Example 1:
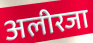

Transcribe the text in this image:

अलीरजा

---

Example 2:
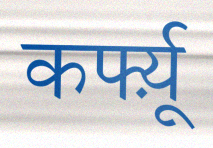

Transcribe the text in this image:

कर्फ्य़ू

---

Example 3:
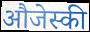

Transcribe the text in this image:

औजेस्की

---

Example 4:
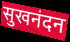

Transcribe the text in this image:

सुखनंदन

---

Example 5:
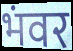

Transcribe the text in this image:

भंवर